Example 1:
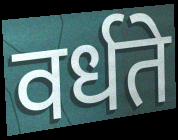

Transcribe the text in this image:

वर्धते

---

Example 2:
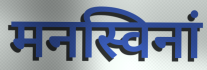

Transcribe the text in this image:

मनस्विनां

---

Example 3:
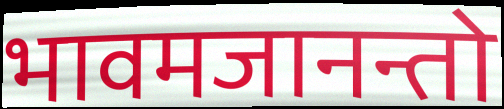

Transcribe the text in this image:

भावमजानन्तो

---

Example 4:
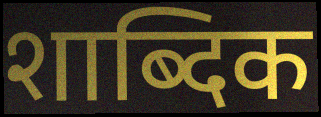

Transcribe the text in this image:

शाब्दिक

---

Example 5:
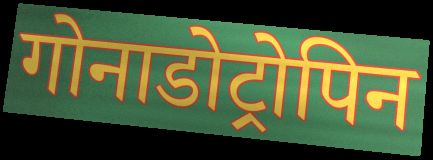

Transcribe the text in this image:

गोनाडोट्रोपिन